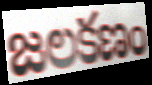
జలకణం